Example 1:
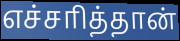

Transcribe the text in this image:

எச்சரித்தான்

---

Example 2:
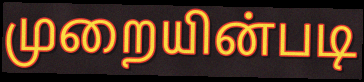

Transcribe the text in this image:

முறையின்படி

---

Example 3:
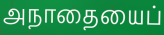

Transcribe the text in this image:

அநாதையைப்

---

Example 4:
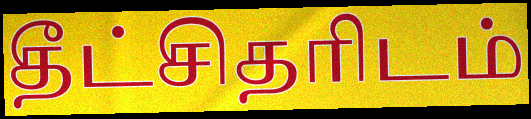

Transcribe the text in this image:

தீட்சிதரிடம்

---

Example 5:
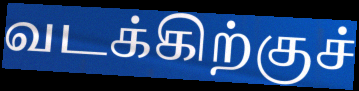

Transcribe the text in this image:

வடக்கிற்குச்